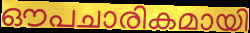
ഔപചാരികമായി